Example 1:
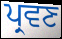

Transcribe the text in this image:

ਪ੍ਰਵਣ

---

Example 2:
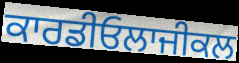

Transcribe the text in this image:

ਕਾਰਡੀਓਲਾਜੀਕਲ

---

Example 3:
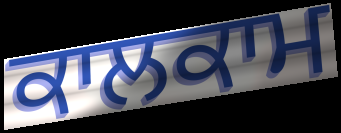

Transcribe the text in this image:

ਕਾਲਕਾਮ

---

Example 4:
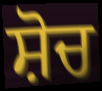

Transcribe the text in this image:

ਸ਼ੋਚ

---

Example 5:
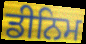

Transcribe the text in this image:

ਡੀਨਿਮ